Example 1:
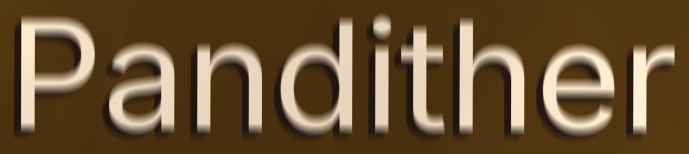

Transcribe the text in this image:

Pandither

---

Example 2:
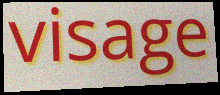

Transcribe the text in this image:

visage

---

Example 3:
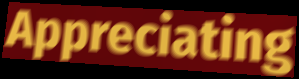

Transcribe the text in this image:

Appreciating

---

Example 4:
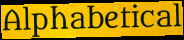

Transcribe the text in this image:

Alphabetical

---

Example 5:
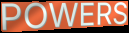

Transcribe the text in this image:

POWERS